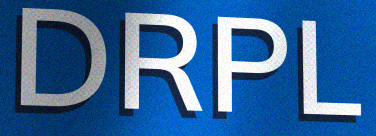
DRPL